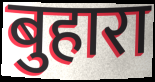
बुहारा